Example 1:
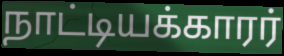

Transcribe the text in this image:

நாட்டியக்காரர்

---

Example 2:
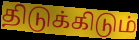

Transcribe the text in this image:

திடுக்கிடும்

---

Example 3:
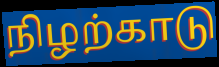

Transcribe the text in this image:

நிழற்காடு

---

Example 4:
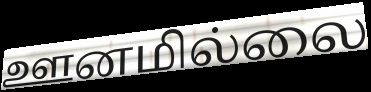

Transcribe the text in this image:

ஊனமில்லை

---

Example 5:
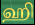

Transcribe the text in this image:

ஹி